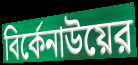
বির্কেনাউয়ের